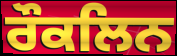
ਰੌਕਲਿਨ